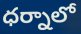
ధర్నాలో